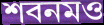
শবনমও